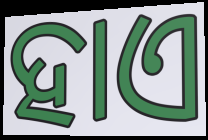
ହାଏ